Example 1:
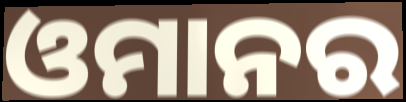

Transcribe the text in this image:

ଓମାନର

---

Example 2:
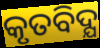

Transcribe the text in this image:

କୃତବିଦ୍ଯ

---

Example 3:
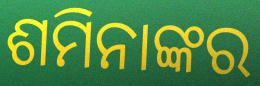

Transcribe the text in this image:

ଶମିନାଙ୍କର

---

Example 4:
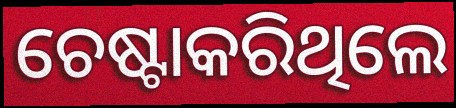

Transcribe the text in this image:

ଚେଷ୍ଟାକରିଥିଲେ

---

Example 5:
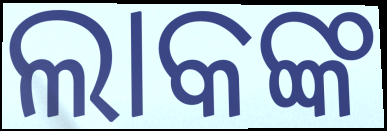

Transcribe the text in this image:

ଲାକଙ୍କ